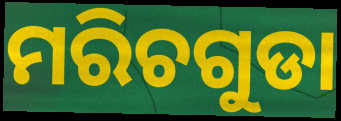
ମରିଚଗୁଡା